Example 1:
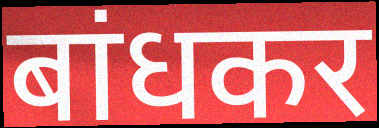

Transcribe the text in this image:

बांधकर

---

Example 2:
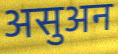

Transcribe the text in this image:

असुअन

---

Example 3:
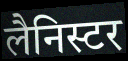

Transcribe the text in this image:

लैनिस्टर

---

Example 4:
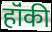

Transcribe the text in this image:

हॉंकी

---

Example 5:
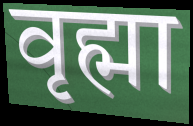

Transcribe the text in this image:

वृह्मा